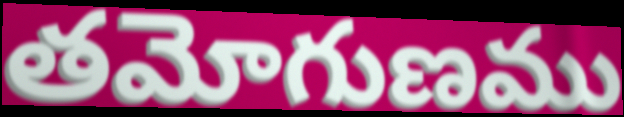
తమోగుణము